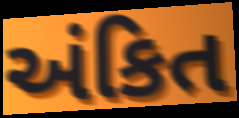
અંકિત